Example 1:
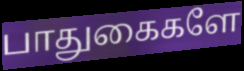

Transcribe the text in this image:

பாதுகைகளே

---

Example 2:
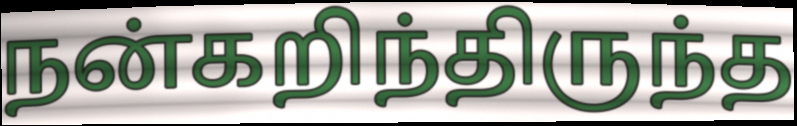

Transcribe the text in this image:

நன்கறிந்திருந்த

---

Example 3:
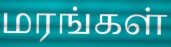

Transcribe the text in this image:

மரங்கள்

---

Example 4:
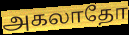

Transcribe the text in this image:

அகலாதோ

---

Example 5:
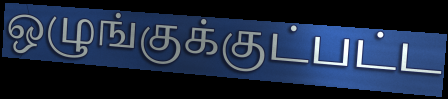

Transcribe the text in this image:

ஒழுங்குக்குட்பட்ட